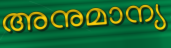
അനുമാന്യ